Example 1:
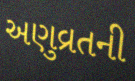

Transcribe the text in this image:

અણુવ્રતની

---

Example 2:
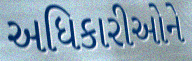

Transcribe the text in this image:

અધિકારીઓને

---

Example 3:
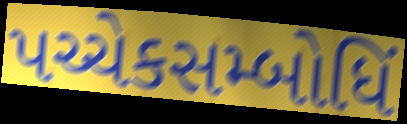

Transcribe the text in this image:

પચ્ચેકસમ્બોધિં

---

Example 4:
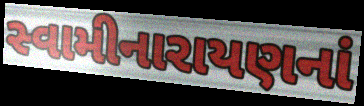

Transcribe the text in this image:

સ્વામીનારાયણનાં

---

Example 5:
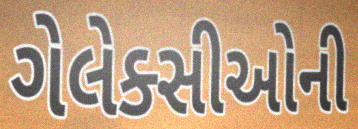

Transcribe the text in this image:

ગેલેક્સીઓની